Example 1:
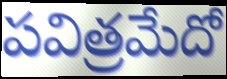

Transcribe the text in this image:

పవిత్రమేదో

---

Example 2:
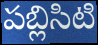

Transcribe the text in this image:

పబ్లిసిటి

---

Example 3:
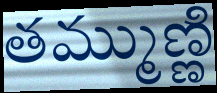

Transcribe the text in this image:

తమ్ముణ్ణి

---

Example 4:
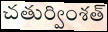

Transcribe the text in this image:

చతుర్వింశత్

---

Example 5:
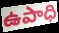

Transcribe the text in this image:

ఉపాధి